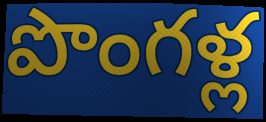
పొంగళ్ల